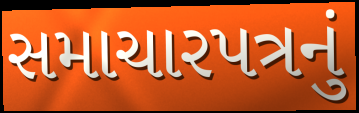
સમાચારપત્રનું